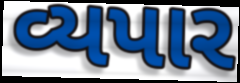
વ્યપાર